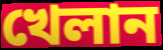
খেলান